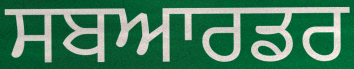
ਸਬਆਰਡਰ